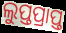
ଲୁପ୍ତପ୍ରାପ୍ତ